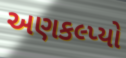
અણકલ્પ્યો